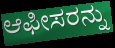
ಆಫೀಸರನ್ನು